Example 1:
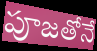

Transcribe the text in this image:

పూజతోనే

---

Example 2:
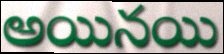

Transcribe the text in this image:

అయినయి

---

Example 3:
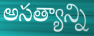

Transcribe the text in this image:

అసత్యాన్ని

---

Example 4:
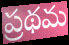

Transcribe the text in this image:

ప్రథమ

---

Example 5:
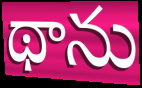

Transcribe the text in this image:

థాను